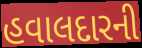
હવાલદારની